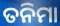
ତନିମା